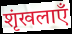
शृंखलाएँ